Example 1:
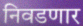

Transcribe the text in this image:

निवडणार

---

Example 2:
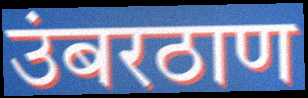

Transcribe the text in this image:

उंबरठाण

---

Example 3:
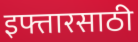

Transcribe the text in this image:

इफ्तारसाठी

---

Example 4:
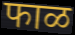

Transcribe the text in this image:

फाळ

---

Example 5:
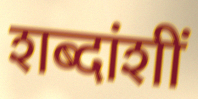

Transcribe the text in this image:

शब्दांशीं